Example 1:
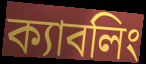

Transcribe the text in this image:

ক্যাবলিং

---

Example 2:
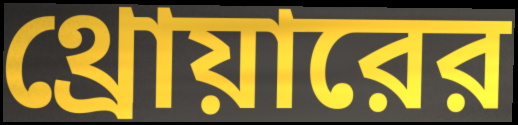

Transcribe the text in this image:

থ্রোয়ারের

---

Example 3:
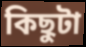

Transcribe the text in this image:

কিছুটা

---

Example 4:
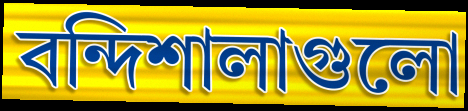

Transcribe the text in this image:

বন্দিশালাগুলো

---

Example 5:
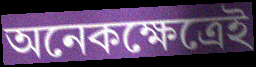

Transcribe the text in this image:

অনেকক্ষেত্রেই